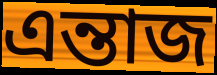
এন্তাজ